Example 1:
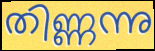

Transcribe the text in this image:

തിണ്ണന്നു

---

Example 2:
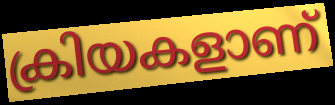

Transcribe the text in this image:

ക്രിയകളാണ്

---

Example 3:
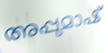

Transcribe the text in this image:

അപ്പുമാഷ്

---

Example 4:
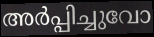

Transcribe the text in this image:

അർപ്പിച്ചുവോ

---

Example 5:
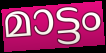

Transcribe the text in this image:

മാട്ടം